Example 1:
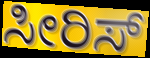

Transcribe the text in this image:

ಸೀರಿಸ್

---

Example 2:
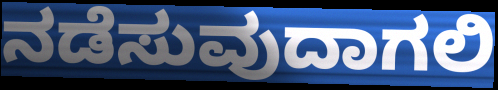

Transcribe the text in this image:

ನಡೆಸುವುದಾಗಲಿ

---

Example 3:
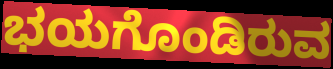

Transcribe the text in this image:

ಭಯಗೊಂಡಿರುವ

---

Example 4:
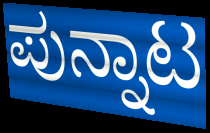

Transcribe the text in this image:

ಪುನ್ನಾಟ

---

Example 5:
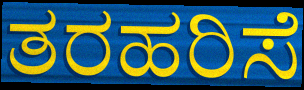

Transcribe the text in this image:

ತರಹರಿಸೆ